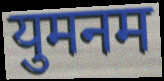
युमनम